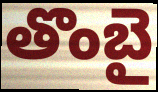
తొంబై